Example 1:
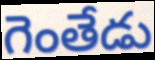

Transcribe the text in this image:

గెంతేడు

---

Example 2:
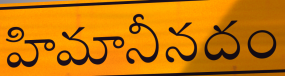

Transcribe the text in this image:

హిమానీనదం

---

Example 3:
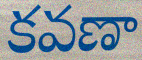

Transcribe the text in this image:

కవణా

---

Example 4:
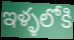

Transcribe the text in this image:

ఇళ్ళలోకి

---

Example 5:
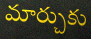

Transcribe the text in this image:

మార్చుకు